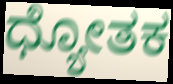
ಧ್ಯೋತಕ